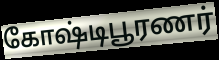
கோஷ்டிபூரணர்